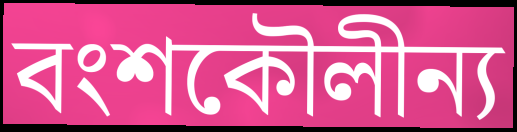
বংশকৌলীন্য